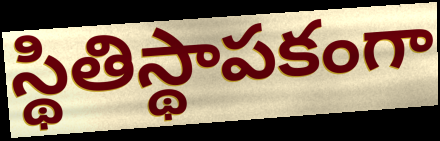
స్థితిస్థాపకంగా